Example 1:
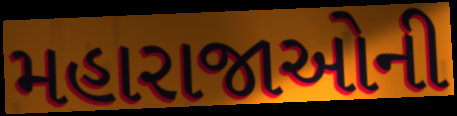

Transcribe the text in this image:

મહારાજાઓની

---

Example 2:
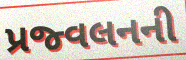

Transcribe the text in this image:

પ્રજ્વલનની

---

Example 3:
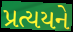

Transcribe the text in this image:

પ્રત્યયને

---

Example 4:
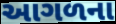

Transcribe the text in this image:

આગળના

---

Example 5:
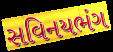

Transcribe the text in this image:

સવિનયભંગ